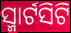
ସ୍ମାର୍ଟସିଟି